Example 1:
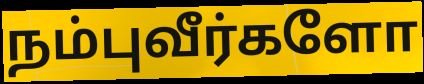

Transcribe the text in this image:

நம்புவீர்களோ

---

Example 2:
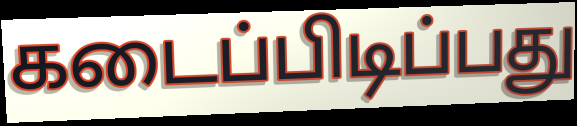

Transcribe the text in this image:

கடைப்பிடிப்பது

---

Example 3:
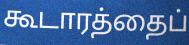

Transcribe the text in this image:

கூடாரத்தைப்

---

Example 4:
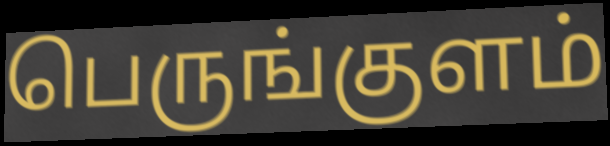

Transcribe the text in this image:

பெருங்குளம்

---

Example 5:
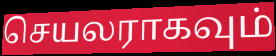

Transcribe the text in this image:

செயலராகவும்